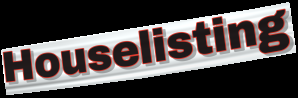
Houselisting